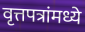
वृत्तपत्रांमध्ये